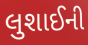
લુશાઈની